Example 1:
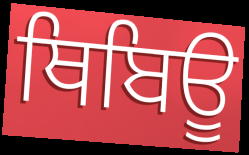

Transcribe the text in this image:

ਥਿਬਿਊ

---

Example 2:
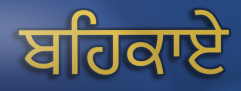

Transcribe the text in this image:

ਬਹਿਕਾਏ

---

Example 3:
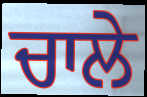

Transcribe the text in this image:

ਚਾਲੇ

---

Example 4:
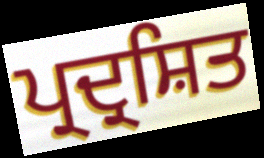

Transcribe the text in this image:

ਪ੍ਰਦ੍ਰਸ਼ਿਤ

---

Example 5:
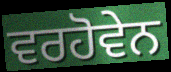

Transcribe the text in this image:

ਵਰਹੋਵੇਨ